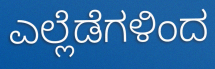
ಎಲ್ಲೆಡೆಗಳಿಂದ